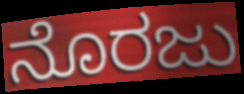
ನೊರಜು